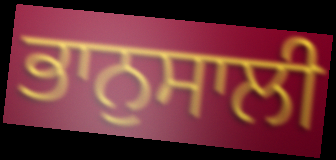
ਭਾਨੁਸਾਲੀ